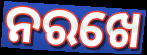
ନରଖେ